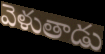
వెళుతాడు